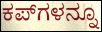
ಕಪ್‌ಗಳನ್ನೂ